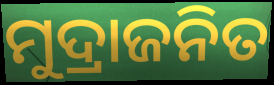
ମୁଦ୍ରାଜନିତ